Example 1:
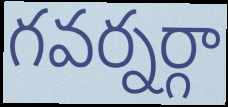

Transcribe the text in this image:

గవర్నర్గా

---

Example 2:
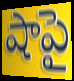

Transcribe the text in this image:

షాపై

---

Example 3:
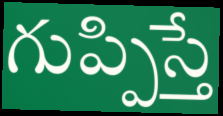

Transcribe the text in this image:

గుప్పిస్తే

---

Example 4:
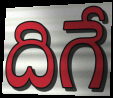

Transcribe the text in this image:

దిగే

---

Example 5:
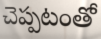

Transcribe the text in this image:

చెప్పటంతో